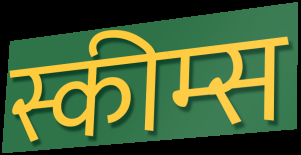
स्‍कीम्‍स